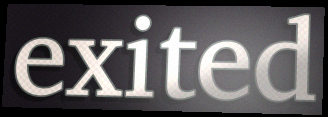
exited